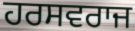
ਹਰਸਵਰਾਜ